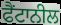
ਫੈਂਟਾਨੀਲ